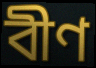
বীণ